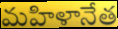
మహిళానేత